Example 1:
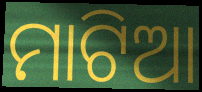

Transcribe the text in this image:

ମାଟିଆ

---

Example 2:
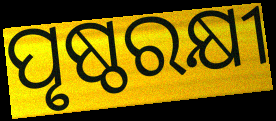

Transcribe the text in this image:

ପୃଷ୍ଠରକ୍ଷୀ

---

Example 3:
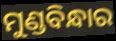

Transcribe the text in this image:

ମୁଣ୍ଡବିନ୍ଧାର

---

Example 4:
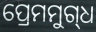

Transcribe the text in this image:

ପ୍ରେମମୁଗ୍‌ଧ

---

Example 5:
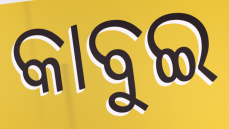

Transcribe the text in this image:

କାବୁଇ